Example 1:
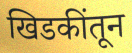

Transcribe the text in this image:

खिडकींतून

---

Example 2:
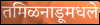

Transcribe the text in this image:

तमिळनाडूमधले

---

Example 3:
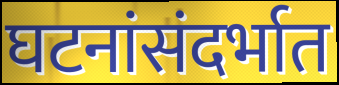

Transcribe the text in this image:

घटनांसंदर्भात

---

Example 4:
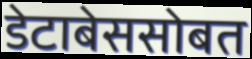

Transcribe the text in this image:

डेटाबेससोबत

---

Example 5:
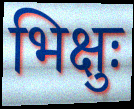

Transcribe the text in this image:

भिक्षुः